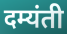
दम्यंती